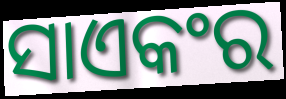
ସାଏକଂର